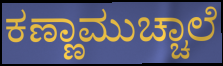
ಕಣ್ಣಾಮುಚ್ಚಾಲೆ